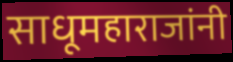
साधूमहाराजांनी